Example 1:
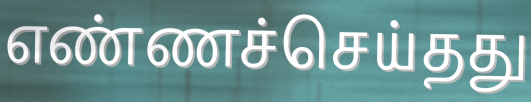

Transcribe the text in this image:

எண்ணச்செய்தது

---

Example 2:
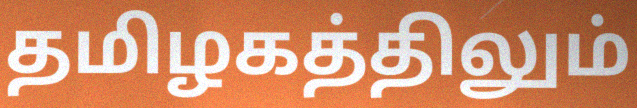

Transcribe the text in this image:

தமிழகத்திலும்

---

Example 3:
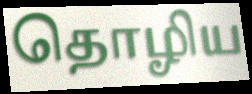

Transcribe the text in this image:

தொழிய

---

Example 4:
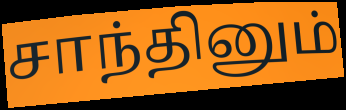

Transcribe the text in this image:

சாந்தினும்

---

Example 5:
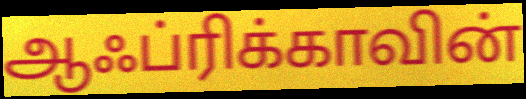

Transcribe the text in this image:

ஆஃப்ரிக்காவின்